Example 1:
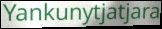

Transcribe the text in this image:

Yankunytjatjara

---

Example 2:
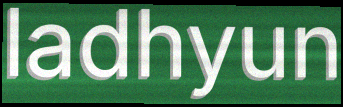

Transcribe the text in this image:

ladhyun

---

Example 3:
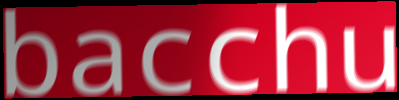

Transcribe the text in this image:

bacchu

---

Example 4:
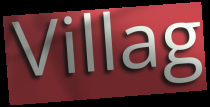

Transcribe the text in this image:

Villag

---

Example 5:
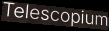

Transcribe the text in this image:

Telescopium